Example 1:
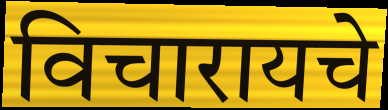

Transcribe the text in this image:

विचारायचे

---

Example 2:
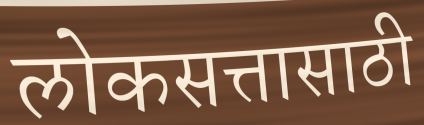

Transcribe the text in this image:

लोकसत्तासाठी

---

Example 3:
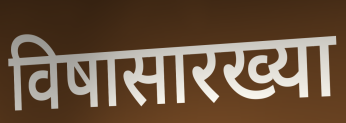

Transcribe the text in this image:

विषासारख्या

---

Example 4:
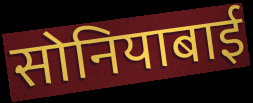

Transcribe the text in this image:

सोनियाबाई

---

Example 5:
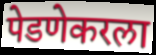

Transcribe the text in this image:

पेडणेकरला